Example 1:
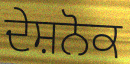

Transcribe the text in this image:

ਦੇਸ਼ਨੋਕ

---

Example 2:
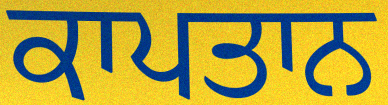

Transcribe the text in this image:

ਕਾਪਤਾਨ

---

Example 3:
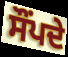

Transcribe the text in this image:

ਸੌਂਪਦੇ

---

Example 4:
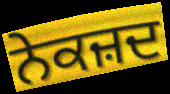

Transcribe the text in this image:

ਨੇਕਜ਼ਦ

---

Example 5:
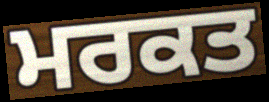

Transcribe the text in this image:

ਮਰਕਤ